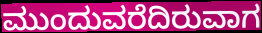
ಮುಂದುವರೆದಿರುವಾಗ